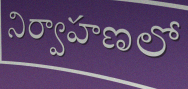
నిర్వాహణలో